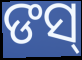
ଙସ୍